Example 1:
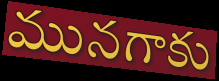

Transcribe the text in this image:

మునగాకు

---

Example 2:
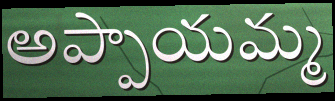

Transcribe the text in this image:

అప్పాయమ్మ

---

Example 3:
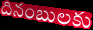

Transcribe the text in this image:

దినంబులకు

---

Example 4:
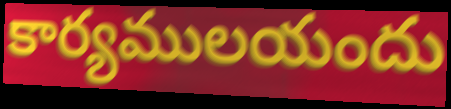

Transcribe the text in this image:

కార్యములయందు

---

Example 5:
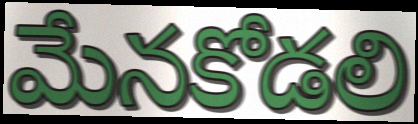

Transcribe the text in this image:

మేనకోడలి